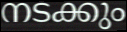
നടക്കും